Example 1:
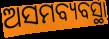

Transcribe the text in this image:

ଅସମବ୍ୟବସ୍ଥା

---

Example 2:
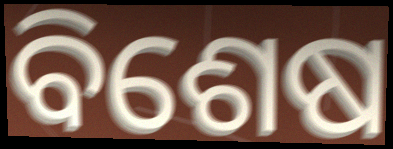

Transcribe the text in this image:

ବିଶେଷ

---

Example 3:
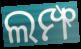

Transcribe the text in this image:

ଲମ୍ଫ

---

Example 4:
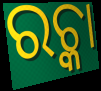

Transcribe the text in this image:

ରଚ୍କା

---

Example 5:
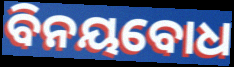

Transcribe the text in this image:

ବିନୟବୋଧ